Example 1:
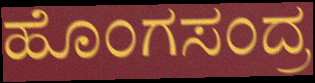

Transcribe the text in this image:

ಹೊಂಗಸಂದ್ರ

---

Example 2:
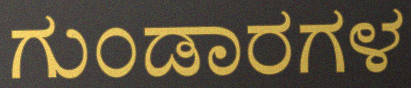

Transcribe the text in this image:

ಗುಂಡಾರಗಳ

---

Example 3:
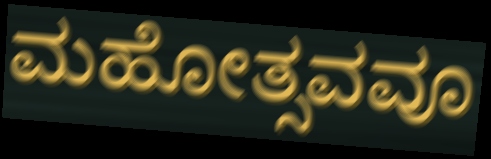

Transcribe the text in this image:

ಮಹೋತ್ಸವವೂ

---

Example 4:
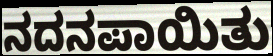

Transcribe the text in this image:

ನದನಪಾಯಿತು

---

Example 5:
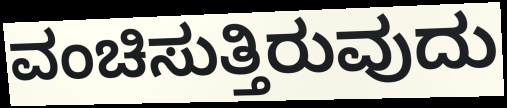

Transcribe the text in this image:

ವಂಚಿಸುತ್ತಿರುವುದು